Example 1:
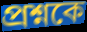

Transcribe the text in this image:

প্রশ্নকে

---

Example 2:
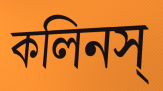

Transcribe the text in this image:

কলিনস্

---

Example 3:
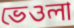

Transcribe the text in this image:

ভেওলা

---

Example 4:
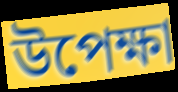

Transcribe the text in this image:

উপেক্ষা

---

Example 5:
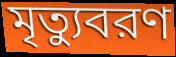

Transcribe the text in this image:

মৃত্যুবরণ